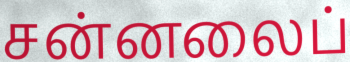
சன்னலைப்